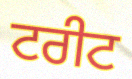
ਟਰੀਟ